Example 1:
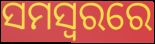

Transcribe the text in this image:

ସମସ୍ବରରେ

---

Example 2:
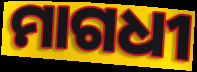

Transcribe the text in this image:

ମାଗଧୀ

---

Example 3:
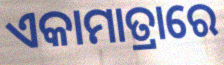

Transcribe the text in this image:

ଏକାମାତ୍ରାରେ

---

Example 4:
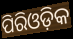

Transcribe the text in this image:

ପିରିଓଡ଼ିକ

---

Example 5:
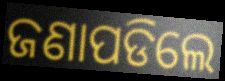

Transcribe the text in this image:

ଜଣାପଡିଲେ